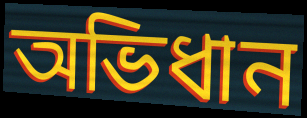
অভিধান